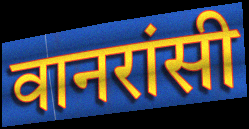
वानरांसी